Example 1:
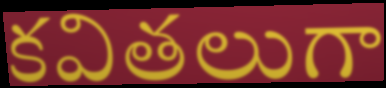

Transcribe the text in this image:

కవితలుగా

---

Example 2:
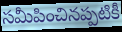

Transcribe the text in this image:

సమీపించినప్పటికీ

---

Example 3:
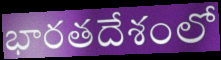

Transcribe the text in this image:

భారతదేశంలో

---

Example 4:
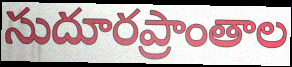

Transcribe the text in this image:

సుదూరప్రాంతాల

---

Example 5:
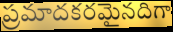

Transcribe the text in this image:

ప్రమాదకరమైనదిగా